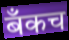
बँकच